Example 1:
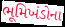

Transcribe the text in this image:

ભૂમિખંડોના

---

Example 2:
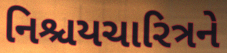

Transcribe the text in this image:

નિશ્ચયચારિત્રને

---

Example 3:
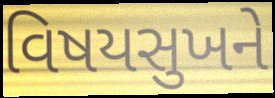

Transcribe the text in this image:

વિષયસુખને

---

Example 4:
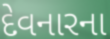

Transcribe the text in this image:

દેવનારના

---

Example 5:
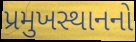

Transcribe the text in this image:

પ્રમુખસ્થાનનો